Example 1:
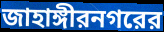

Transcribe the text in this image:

জাহাঙ্গীরনগরের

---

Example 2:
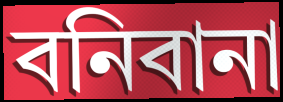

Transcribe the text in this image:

বনিবানা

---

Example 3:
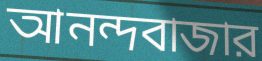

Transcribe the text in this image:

আনন্দবাজার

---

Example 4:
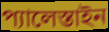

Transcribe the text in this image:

প্যালেস্তাইন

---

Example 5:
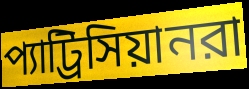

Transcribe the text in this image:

প্যাট্রিসিয়ানরা